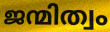
ജന്മിത്വം